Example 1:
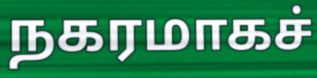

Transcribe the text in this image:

நகரமாகச்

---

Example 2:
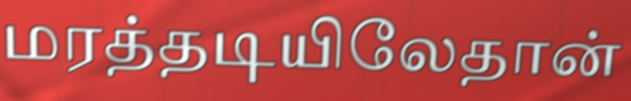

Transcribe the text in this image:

மரத்தடியிலேதான்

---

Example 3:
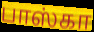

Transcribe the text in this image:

பாஸ்கா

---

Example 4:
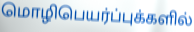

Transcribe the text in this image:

மொழிபெயர்ப்புக்களில்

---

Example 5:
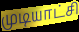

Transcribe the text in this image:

முடியாட்சி